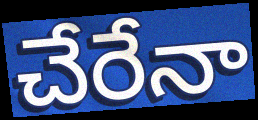
చేరేనా